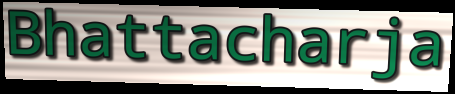
Bhattacharja